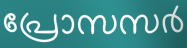
പ്രോസസർ